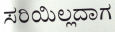
ಸರಿಯಿಲ್ಲದಾಗ